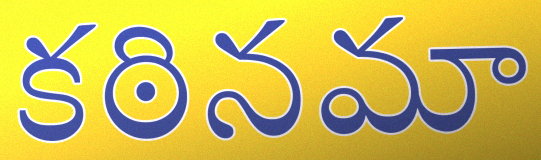
కఠినమా